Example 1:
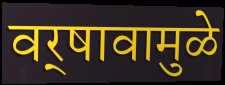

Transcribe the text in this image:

वर्षावामुळे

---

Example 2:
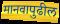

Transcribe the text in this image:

मानवापुढील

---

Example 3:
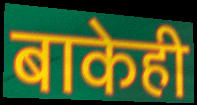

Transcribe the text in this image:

बाकेही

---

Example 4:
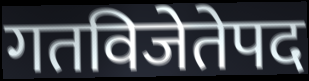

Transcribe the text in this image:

गतविजेतेपद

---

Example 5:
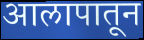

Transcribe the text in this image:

आलापातून